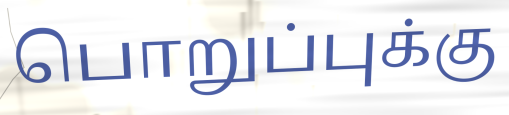
பொறுப்புக்கு